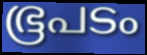
ഭൂപടം